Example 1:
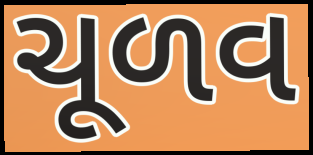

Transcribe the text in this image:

ચૂળવ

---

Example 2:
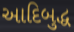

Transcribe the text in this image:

આદિબુદ્ધ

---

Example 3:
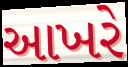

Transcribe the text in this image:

આખરે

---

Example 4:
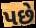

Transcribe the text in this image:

પછે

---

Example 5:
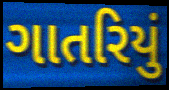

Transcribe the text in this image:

ગાતરિયું